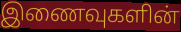
இணைவுகளின்